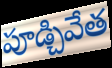
పూడ్చివేత